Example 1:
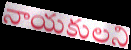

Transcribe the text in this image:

నాయకులని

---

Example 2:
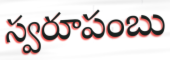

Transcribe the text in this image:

స్వరూపంబు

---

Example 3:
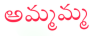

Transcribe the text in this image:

అమ్మమ్మ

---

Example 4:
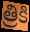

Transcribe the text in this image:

త్రికి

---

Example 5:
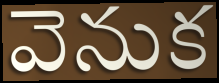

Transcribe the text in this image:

వెనుక